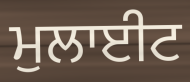
ਮੁਲਾਈਟ